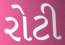
રોટી